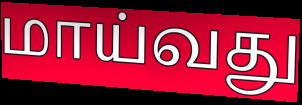
மாய்வது